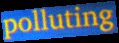
polluting